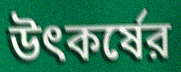
উৎকর্ষের